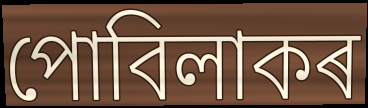
পোবিলাকৰ